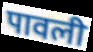
पावली